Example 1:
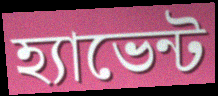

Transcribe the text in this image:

হ্যাভেন্ট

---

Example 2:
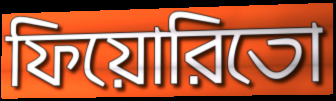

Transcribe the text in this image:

ফিয়োরিতো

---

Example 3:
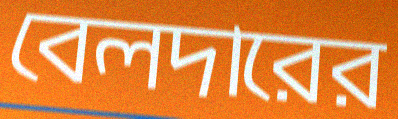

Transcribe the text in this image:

বেলদারের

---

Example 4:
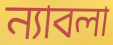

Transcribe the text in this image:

ন্যাবলা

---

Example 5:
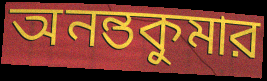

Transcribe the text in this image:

অনন্তকুমার